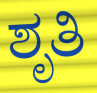
ಶೃತಿ